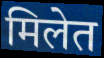
मिलेत